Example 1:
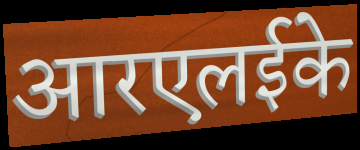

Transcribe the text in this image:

आरएलईके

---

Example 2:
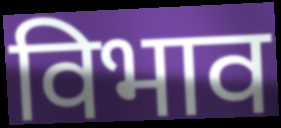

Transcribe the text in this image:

विभाव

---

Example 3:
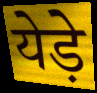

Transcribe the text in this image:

येड़े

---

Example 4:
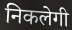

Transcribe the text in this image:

निकलेगी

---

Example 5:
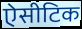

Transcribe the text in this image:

ऐसीटिक